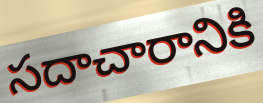
సదాచారానికి